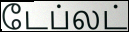
டேப்லட்